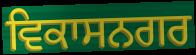
ਵਿਕਾਸਨਗਰ